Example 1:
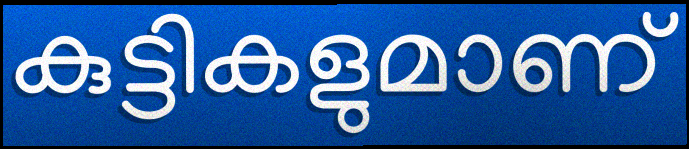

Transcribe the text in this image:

കുട്ടികളുമാണ്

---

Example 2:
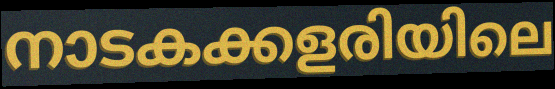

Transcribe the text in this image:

നാടകക്കളരിയിലെ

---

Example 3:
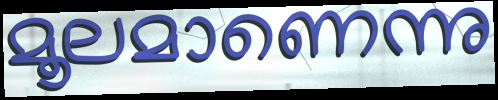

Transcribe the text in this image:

മൂലമാണെന്നു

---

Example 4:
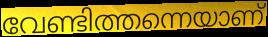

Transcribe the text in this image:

വേണ്ടിത്തന്നെയാണ്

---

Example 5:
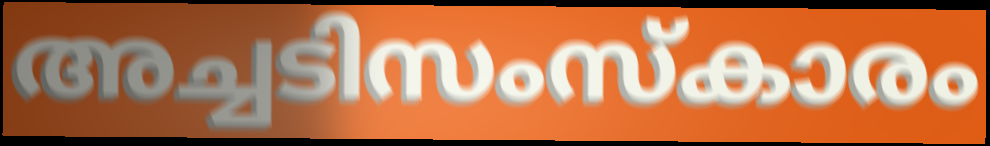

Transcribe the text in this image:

അച്ചടിസംസ്കാരം